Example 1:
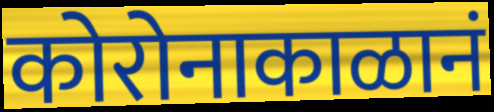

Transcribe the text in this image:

कोरोनाकाळानं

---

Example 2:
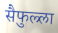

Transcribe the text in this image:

सैफुल्ला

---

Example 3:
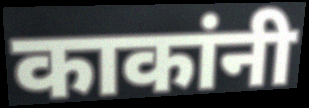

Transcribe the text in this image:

काकांनी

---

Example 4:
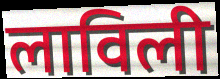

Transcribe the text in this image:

लाविली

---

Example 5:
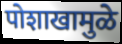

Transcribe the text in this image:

पोशाखामुळे